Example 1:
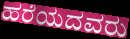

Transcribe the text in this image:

ಹರೆಯದವರು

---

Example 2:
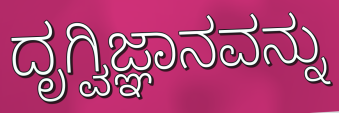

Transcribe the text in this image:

ದೃಗ್ವಿಜ್ಞಾನವನ್ನು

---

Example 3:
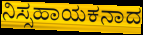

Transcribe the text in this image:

ನಿಸ್ಸಹಾಯಕನಾದ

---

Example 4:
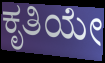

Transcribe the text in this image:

ಕೃತಿಯೇ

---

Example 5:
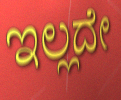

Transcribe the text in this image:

ಇಲ್ಲದೇ